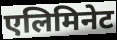
एलिमिनेट